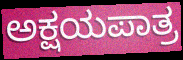
ಅಕ್ಷಯಪಾತ್ರ